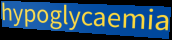
hypoglycaemia